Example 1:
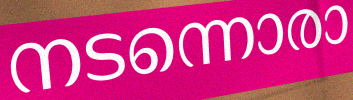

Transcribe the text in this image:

നടന്നൊരാ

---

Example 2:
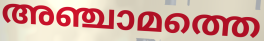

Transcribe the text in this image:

അഞ്ചാമത്തെ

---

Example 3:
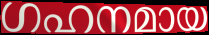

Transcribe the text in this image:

ഗഹനമായ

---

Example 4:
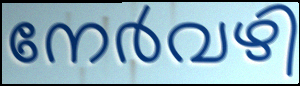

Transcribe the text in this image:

നേർവഴി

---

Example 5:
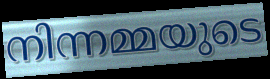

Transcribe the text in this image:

നിന്നമ്മയുടെ